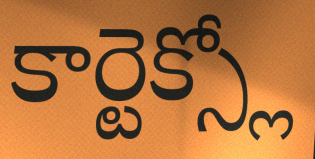
కార్టెక్స్లో